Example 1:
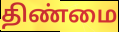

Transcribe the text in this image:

திண்மை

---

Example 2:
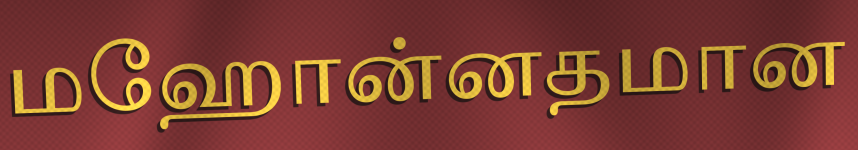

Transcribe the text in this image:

மஹோன்னதமான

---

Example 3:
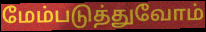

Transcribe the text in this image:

மேம்படுத்துவோம்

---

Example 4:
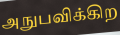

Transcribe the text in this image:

அநுபவிக்கிற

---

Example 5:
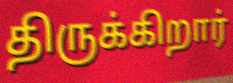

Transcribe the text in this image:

திருக்கிறார்